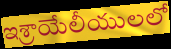
ఇశ్రాయేలీయులలో